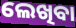
ଲେଖିବା